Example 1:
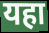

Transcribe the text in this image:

यहा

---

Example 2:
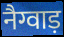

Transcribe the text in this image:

नैग्वाड़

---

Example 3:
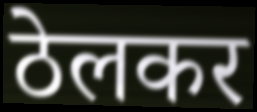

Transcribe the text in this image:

ठेलकर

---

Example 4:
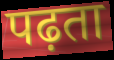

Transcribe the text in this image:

पढ़ता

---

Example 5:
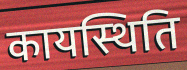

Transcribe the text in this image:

कायस्थिति